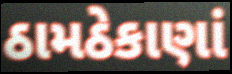
ઠામઠેકાણાં